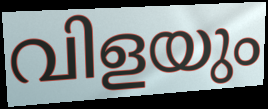
വിളയും